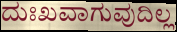
ದುಃಖವಾಗುವುದಿಲ್ಲ